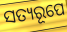
ସତ୍ୟରୂପେ